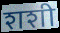
शशी